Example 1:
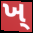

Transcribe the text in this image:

ખ્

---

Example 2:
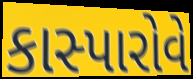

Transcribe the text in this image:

કાસ્પારોવે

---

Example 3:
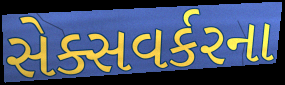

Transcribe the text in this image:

સેક્સવર્કરના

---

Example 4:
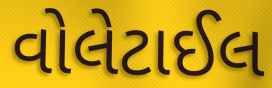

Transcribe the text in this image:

વોલેટાઈલ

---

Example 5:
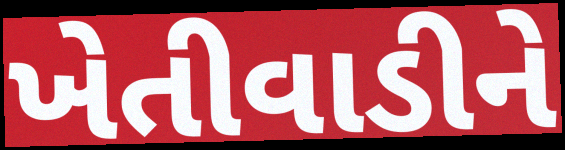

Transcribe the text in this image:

ખેતીવાડીને